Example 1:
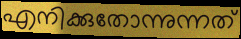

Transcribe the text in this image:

എനിക്കുതോന്നുന്നത്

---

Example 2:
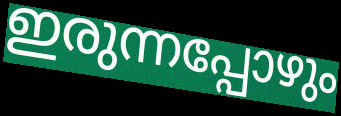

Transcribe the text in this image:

ഇരുന്നപ്പോഴും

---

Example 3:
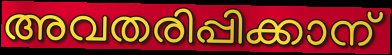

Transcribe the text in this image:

അവതരിപ്പിക്കാന്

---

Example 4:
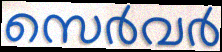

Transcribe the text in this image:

സെർവർ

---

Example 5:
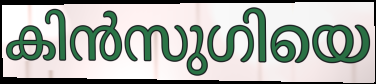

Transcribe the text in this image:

കിൻസുഗിയെ